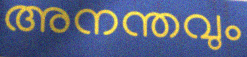
അനന്തവും